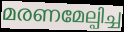
മരണമേല്പിച്ച